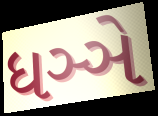
ધઞ્ઞે